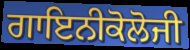
ਗਾਇਨੀਕੋਲੋਜੀ